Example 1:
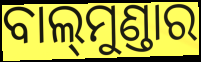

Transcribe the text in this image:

ବାଲ୍‍ମୁଣ୍ଡାର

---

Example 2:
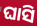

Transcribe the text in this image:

ଘାସି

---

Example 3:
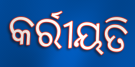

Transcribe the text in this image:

କର୍ରୀୟତି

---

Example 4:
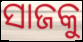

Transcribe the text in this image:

ସାଜକୁ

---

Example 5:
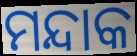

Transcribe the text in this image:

ମନ୍ଦାକ